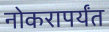
नोकरापर्यंत